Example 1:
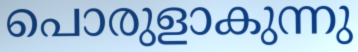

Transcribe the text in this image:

പൊരുളാകുന്നു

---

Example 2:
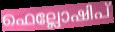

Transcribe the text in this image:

ഫെല്ലോഷിപ്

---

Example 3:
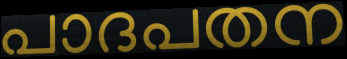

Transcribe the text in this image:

പാദപതന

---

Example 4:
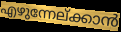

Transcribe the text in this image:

എഴുന്നേല്ക്കാൻ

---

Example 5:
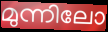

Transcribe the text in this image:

മുന്നിലോ